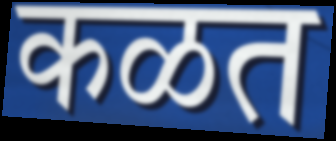
कळत